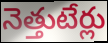
నెత్తుటేర్లు